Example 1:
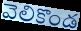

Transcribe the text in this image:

వెలికొండ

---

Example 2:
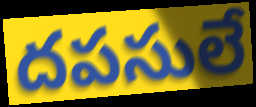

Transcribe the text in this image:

దపసులే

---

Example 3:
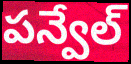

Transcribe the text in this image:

పన్వేల్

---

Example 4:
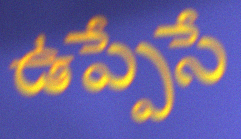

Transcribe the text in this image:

ఉప్పేసే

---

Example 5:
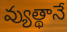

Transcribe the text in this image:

వ్యుత్థానే